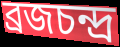
ব্রজচন্দ্র